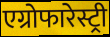
एग्रोफारेस्ट्री